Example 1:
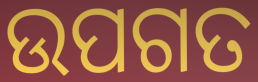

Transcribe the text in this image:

ଉପଗତ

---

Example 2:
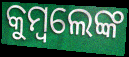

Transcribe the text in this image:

କୁମ୍ବଲେଙ୍କ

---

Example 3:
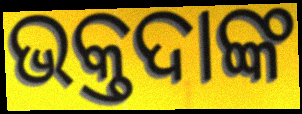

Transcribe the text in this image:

ଭକ୍ତଦାଙ୍କ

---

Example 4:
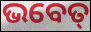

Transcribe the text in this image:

ଭବେତ୍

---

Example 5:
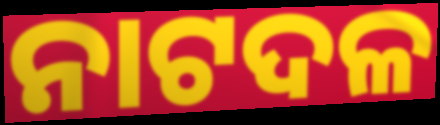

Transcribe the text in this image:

ନାଟଦଳ